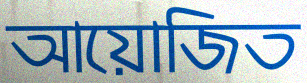
আয়োজিত